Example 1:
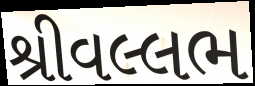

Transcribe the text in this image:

શ્રીવલ્લભ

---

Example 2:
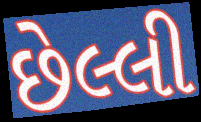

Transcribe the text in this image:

છેલ્લી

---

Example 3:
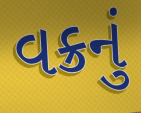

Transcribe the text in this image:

વક્રનું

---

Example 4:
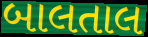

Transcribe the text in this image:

બાલતાલ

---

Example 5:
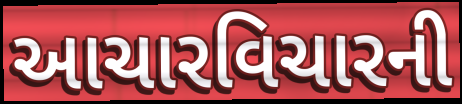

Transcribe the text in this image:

આચારવિચારની